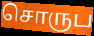
சொருப